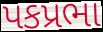
પકપ્રભા